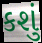
કશું